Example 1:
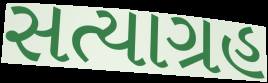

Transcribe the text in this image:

સત્યાગ્રહ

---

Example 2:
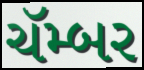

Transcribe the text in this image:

ચૅમ્બર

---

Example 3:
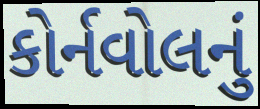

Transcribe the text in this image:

કોર્નવોલનું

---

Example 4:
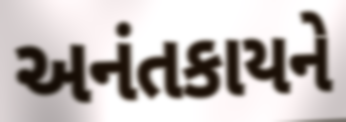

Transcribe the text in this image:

અનંતકાયને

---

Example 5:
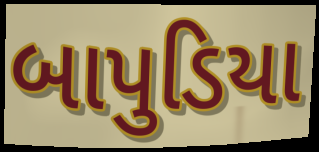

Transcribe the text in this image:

બાપુડિયા